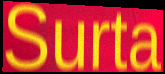
Surta